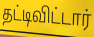
தட்டிவிட்டார்